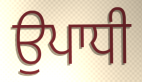
ਉਪਾਧੀ